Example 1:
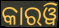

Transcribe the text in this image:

କାରୱି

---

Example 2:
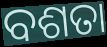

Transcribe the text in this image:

ବଶତା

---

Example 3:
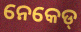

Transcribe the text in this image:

ନେକେଡ୍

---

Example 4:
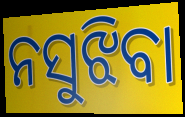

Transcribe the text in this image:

ନସୁଝିବା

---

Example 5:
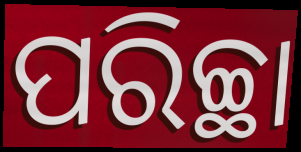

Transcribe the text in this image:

ପରିଚ୍ଛା